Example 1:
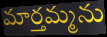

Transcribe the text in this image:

మార్తమ్మను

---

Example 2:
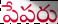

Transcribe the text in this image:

పేపరు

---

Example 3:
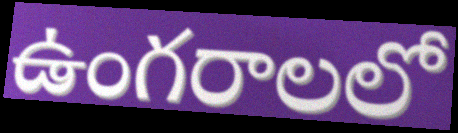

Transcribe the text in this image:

ఉంగరాలలో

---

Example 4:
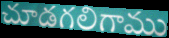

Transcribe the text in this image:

చూడగలిగాము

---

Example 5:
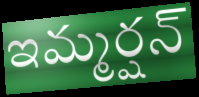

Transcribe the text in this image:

ఇమ్మర్షన్